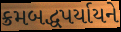
ક્રમબદ્ધપર્યાયને